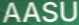
AASU